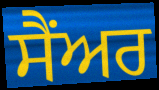
ਸੈਂਅਰ